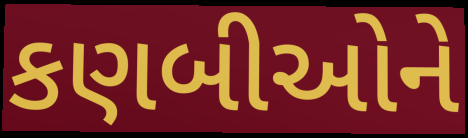
કણબીઓને